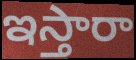
ఇస్తారా